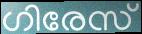
ഗിരേസ്